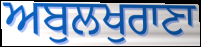
ਅਬੁਲਖੁਰਾਣਾ